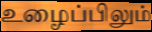
உழைப்பிலும்